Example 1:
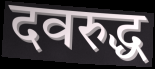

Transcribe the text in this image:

दवरुद्ध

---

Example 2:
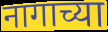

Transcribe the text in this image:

नागाच्या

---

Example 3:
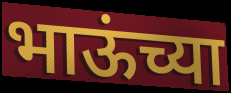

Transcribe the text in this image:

भाऊंच्या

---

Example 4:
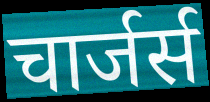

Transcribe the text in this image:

चार्जर्स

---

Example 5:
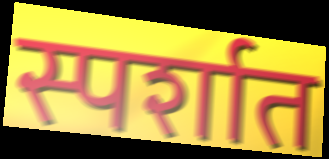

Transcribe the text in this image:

स्पर्शात